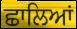
ਛਾਲਿਆਂ